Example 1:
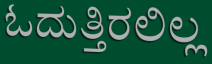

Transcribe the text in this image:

ಓದುತ್ತಿರಲಿಲ್ಲ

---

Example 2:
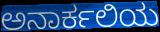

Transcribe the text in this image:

ಅನಾರ್ಕಲಿಯ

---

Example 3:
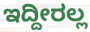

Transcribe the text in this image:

ಇದ್ದೀರಲ್ಲ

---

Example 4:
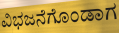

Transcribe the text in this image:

ವಿಭಜನೆಗೊಂಡಾಗ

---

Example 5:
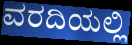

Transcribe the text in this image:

ವರದಿಯಲ್ಲಿ